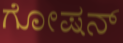
ಗೋಷನ್